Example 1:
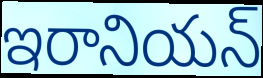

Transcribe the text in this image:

ఇరానియన్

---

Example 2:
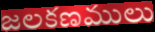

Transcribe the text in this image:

జలకణములు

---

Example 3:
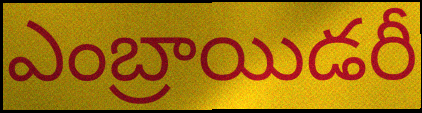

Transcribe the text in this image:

ఎంబ్రాయిడరీ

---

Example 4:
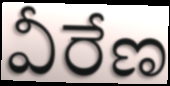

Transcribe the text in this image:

వీరేణ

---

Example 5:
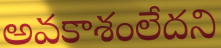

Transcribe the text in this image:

అవకాశంలేదని